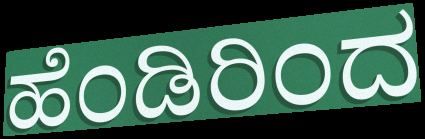
ಹೆಂಡಿರಿಂದ